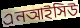
এনআইসিউ